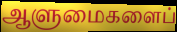
ஆளுமைகளைப்